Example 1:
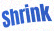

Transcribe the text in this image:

Shrink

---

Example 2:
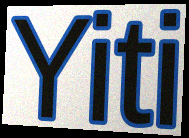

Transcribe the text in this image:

Yiti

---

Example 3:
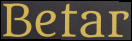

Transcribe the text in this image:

Betar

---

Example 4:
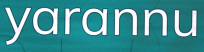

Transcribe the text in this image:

yarannu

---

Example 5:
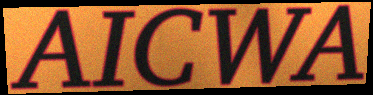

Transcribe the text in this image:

AICWA